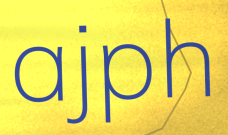
ajph